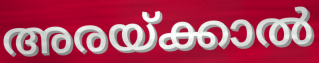
അരയ്ക്കാൽ